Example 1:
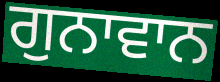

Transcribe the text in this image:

ਗੁਨਾਵਾਨ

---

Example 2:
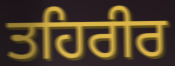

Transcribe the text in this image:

ਤਹਿਰੀਰ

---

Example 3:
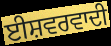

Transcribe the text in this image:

ਈਸ਼ਵਰਵਾਦੀ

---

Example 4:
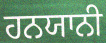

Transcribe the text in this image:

ਹਨਯਾਨੀ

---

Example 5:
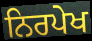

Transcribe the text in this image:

ਨਿਰਪੇਖ